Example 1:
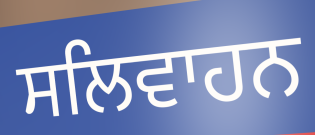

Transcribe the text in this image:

ਸਲਿਵਾਹਨ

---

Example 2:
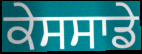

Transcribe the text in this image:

ਕੇਸਸਾਡੇ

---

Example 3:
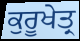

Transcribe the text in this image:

ਕੁਰੂਖੇਤ੍ਰ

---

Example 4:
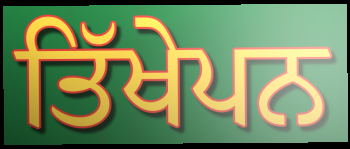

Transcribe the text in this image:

ਤਿੱਖੇਪਨ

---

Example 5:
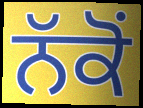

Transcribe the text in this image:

ਨੱਕੋਂ